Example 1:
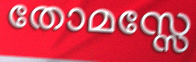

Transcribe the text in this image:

തോമസ്സേ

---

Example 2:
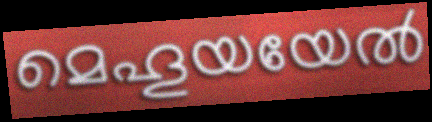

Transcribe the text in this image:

മെഹൂയയേൽ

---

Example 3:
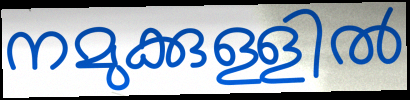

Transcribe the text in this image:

നമുക്കുള്ളിൽ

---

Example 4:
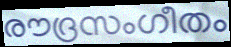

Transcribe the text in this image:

രൗദ്രസംഗീതം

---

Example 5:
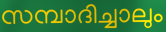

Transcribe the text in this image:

സമ്പാദിച്ചാലും